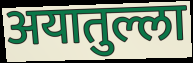
अयातुल्ला